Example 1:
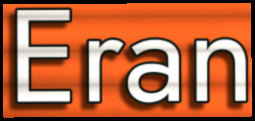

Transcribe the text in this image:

Eran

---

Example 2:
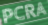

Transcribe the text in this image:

PCRA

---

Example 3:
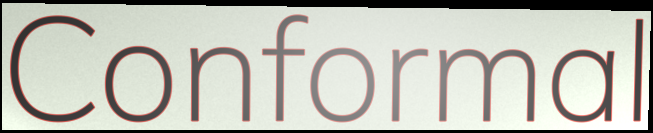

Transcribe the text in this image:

Conformal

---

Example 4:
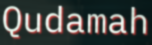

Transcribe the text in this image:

Qudamah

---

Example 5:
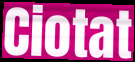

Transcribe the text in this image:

Ciotat